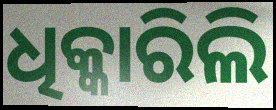
ଧିକ୍କାରିଲି